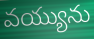
వయ్యును